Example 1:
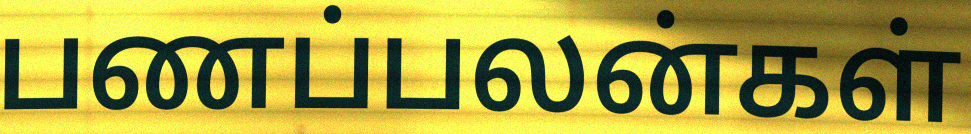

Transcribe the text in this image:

பணப்பலன்கள்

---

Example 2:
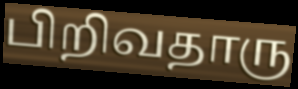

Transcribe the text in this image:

பிறிவதாரு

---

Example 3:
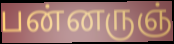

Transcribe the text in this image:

பன்னருஞ்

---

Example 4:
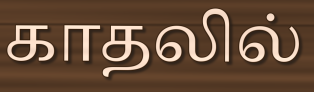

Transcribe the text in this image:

காதலில்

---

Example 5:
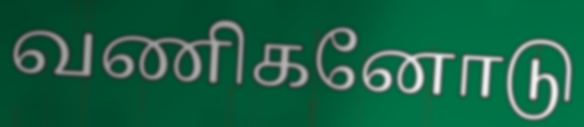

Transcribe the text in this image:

வணிகனோடு